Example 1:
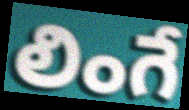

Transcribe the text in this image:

లింగే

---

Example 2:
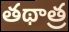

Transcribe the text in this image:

తథాత్ర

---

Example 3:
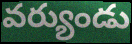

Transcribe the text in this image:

వర్యుండు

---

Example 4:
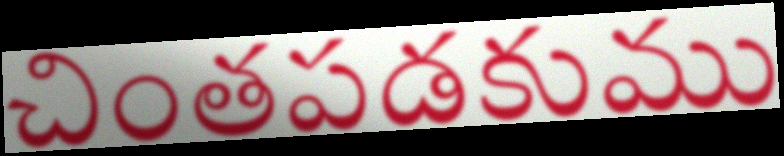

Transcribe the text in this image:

చింతపడకుము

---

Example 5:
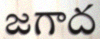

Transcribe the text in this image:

జగాద